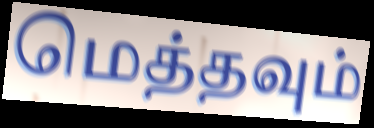
மெத்தவும்